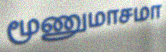
மூணுமாசமா